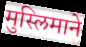
मुस्लिमाने